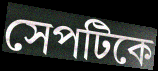
সেপটিকে